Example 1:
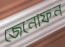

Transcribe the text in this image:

জেনোফন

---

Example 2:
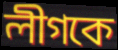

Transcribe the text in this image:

লীগকে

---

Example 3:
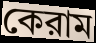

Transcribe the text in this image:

কেরাম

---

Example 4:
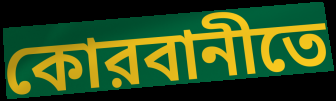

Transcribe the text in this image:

কোরবানীতে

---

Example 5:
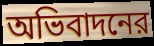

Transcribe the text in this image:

অভিবাদনের